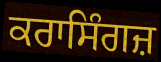
ਕਰਾਸਿੰਗਜ਼